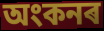
অংকনৰ